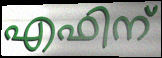
എഫിന്